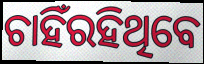
ଚାହିଁରହିଥିବେ